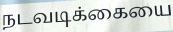
நடவடிக்கையை